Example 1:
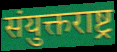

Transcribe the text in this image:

संयुक्तराष्ट्र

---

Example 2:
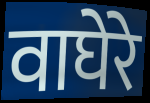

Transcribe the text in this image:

वाघेरे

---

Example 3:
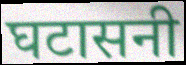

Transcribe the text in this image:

घटासनी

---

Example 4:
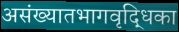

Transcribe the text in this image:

असंख्यातभागवृद्धिका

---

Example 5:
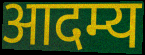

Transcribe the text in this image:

आदम्य